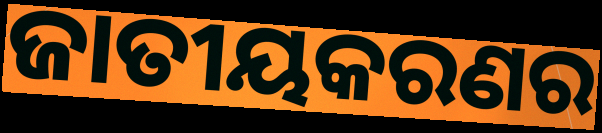
ଜାତୀୟକରଣର